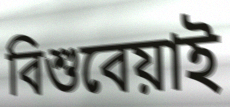
বিশুবেয়াই